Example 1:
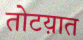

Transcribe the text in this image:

तोटय़ात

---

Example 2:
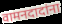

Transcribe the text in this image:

वामनदादांना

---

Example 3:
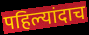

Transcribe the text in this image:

पहिल्यांदाच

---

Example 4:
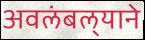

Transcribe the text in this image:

अवलंबल्याने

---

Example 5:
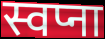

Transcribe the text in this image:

स्वप्ना